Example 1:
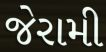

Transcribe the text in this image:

જેરામી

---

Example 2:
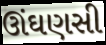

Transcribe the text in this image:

ઊંઘણસી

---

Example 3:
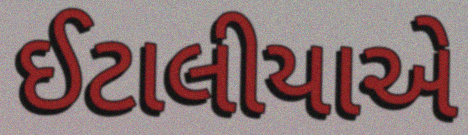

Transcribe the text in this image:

ઈટાલીયાએ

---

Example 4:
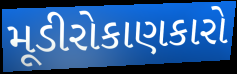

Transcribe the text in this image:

મૂડીરોકાણકારો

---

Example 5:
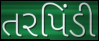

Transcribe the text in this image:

તરપિંડી